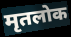
मृतलोक